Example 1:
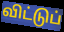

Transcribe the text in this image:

விட்டுப்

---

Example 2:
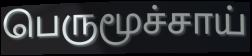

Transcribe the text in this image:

பெருமூச்சாய்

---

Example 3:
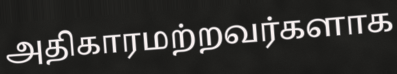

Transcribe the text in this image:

அதிகாரமற்றவர்களாக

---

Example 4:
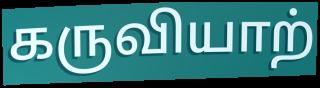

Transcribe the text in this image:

கருவியாற்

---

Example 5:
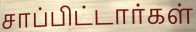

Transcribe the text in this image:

சாப்பிட்டார்கள்